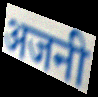
अजनी